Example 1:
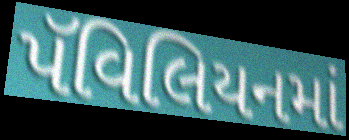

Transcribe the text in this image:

પૅવિલિયનમાં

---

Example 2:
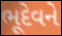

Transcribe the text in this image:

ભૂદેવને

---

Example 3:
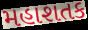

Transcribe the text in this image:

મહાશતક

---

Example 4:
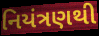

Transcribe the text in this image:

નિયંત્રણથી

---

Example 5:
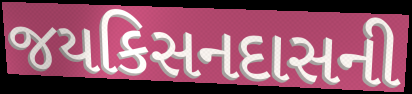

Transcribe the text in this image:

જયકિસનદાસની